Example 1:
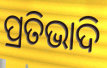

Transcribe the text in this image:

ପ୍ରତିଭାଦି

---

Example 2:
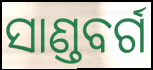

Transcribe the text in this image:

ସାଣ୍ଡବର୍ଗ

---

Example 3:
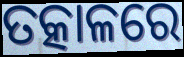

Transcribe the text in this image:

ତତ୍କାଳରେ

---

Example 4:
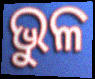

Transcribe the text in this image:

ଭୁଳ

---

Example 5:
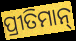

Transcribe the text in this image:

ପ୍ରୀତିମାନ୍